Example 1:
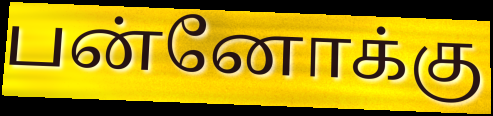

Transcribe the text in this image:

பன்னோக்கு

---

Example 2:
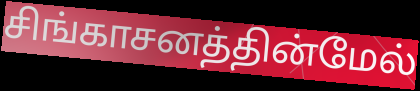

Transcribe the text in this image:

சிங்காசனத்தின்மேல்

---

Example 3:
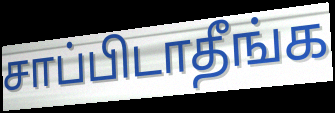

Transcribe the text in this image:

சாப்பிடாதீங்க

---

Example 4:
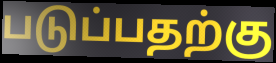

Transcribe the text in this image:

படுப்பதற்கு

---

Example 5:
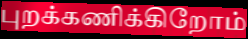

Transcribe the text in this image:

புறக்கணிக்கிறோம்